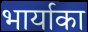
भार्याका